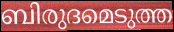
ബിരുദമെടുത്ത